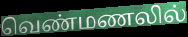
வெண்மணலில்